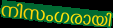
നിസംഗരായി